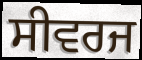
ਸੀਵਰਜ